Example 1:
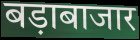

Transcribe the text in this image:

बड़ाबाजार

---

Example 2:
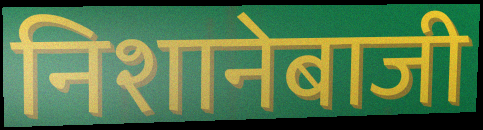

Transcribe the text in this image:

निशानेबाजी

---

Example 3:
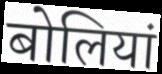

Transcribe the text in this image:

बोलियां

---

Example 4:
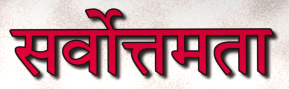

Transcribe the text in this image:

सर्वोत्तमता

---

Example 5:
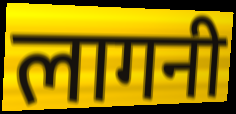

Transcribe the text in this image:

लागनी